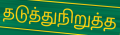
தடுத்துநிறுத்த